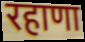
रहाणा